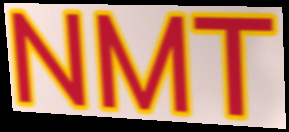
NMT